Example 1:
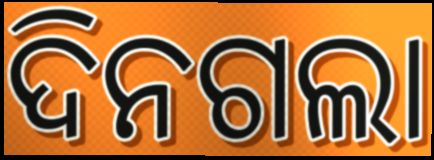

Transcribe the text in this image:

ଦିନଗଲା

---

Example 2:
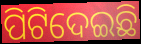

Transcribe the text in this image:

ପିଟିଦେଇଛି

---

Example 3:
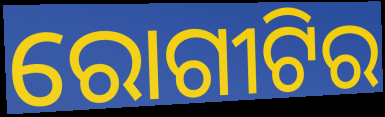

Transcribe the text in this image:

ରୋଗୀଟିର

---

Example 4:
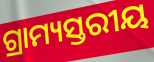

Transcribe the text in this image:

ଗ୍ରାମ୍ୟସ୍ତରୀୟ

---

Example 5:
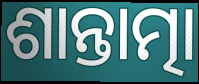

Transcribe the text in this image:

ଶାନ୍ତାତ୍ମା